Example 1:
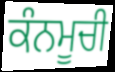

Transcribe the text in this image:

ਕੰਨਮੂਚੀ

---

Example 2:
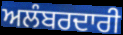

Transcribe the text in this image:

ਅਲੰਬਰਦਾਰੀ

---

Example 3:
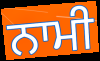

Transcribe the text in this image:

ਨਾਮੀ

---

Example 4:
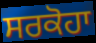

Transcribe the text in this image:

ਸਰਕੋਹਾ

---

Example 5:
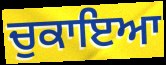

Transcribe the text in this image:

ਚੁਕਾਇਆ